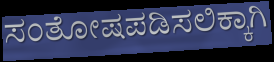
ಸಂತೋಷಪಡಿಸಲಿಕ್ಕಾಗಿ